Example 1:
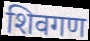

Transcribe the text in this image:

शिवगण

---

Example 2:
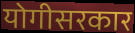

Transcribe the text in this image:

योगीसरकार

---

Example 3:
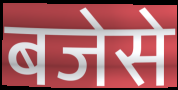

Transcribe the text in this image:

बजेसे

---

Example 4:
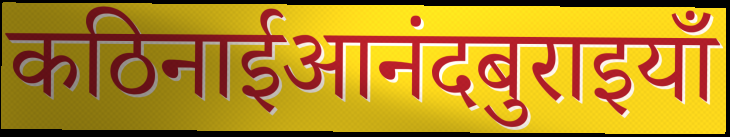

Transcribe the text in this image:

कठिनाईआनंदबुराइयाँ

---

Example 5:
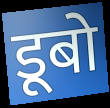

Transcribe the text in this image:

डूबो